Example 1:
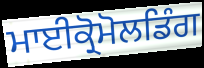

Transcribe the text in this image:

ਮਾਈਕ੍ਰੋਮੋਲਡਿੰਗ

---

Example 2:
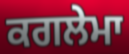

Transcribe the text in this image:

ਕਗਲੇਮਾ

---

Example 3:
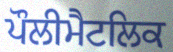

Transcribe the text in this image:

ਪੌਲੀਮੈਟਲਿਕ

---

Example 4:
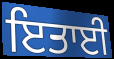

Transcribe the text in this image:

ਇਤਾਈ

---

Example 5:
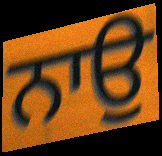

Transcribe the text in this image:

ਨਾਉ